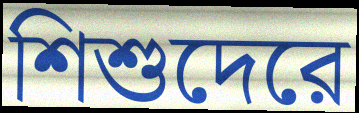
শিশুদেরে